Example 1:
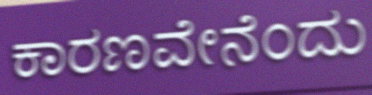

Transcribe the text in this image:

ಕಾರಣವೇನೆಂದು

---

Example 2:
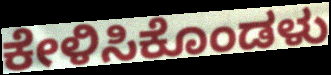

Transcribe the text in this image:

ಕೇಳಿಸಿಕೊಂಡಳು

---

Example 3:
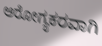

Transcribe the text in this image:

ಆರೋಗ್ಯಕರವಾಗಿ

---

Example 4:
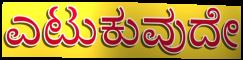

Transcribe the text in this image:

ಎಟುಕುವುದೇ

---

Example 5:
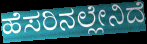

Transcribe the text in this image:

ಹೆಸರಿನಲ್ಲೇನಿದೆ